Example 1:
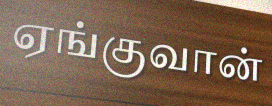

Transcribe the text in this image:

ஏங்குவான்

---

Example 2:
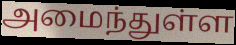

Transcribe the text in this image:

அமைந்துள்ள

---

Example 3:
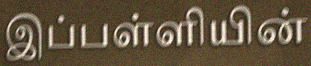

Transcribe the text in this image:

இப்பள்ளியின்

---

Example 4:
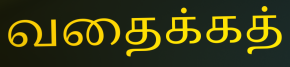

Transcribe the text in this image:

வதைக்கத்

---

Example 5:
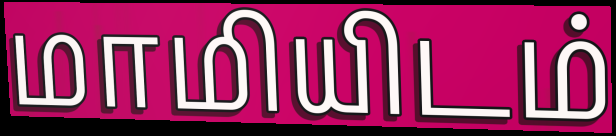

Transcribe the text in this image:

மாமியிடம்